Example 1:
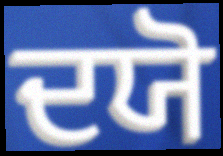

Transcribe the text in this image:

ਦਯੋ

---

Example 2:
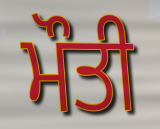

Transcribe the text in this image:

ਮੌਤੀ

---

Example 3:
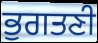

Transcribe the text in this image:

ਭੁਗਤਣੀ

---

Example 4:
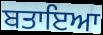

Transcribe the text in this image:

ਬਤਾਇਆ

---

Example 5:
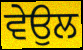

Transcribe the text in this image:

ਵੇਉਲ